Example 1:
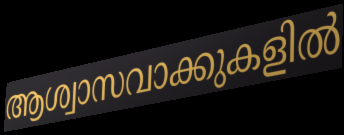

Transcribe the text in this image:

ആശ്വാസവാക്കുകളിൽ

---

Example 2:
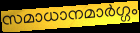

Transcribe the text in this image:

സമാധാനമാർഗ്ഗം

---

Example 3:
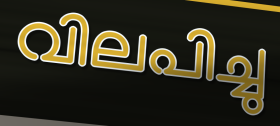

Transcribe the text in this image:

വിലപിച്ചു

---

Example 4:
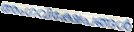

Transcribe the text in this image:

അംഗവിക്ഷേപങ്ങൾ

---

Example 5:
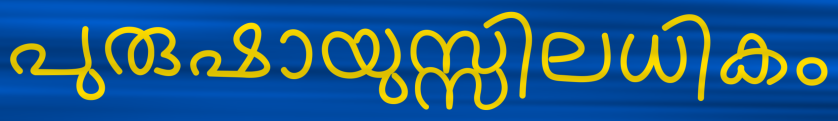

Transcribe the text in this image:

പുരുഷായുസ്സിലധികം